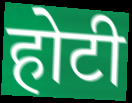
होटी